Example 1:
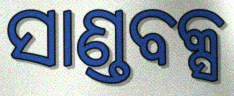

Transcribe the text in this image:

ସାଣ୍ଡବକ୍ସ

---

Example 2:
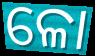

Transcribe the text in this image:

ଳୋ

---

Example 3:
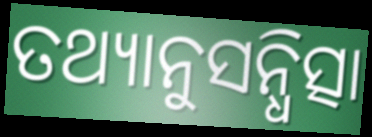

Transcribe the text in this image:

ତଥ୍ୟାନୁସନ୍ଧିତ୍ସା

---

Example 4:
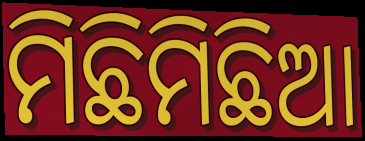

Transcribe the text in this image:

ମିଛିମିଛିଆ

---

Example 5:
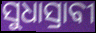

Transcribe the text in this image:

ସୁଧାସ୍ରାବୀ